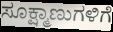
ಸೂಕ್ಷ್ಮಾಣುಗಳಿಗೆ